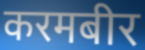
करमबीर